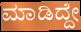
ಮಾಡಿದ್ದೇ